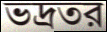
ভদ্রতর